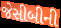
જેસીબીની